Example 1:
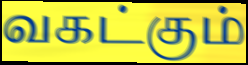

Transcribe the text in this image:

வகட்கும்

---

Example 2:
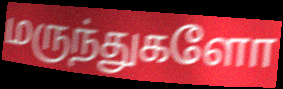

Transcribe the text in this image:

மருந்துகளோ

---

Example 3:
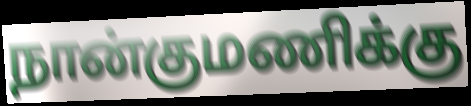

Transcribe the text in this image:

நான்குமணிக்கு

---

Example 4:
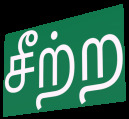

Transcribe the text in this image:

சீற்ற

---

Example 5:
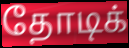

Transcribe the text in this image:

தோடிக்